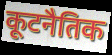
कूटनैतिक